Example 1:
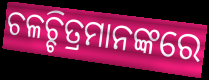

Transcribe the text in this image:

ଚଳଚ୍ଚିତ୍ରମାନଙ୍କରେ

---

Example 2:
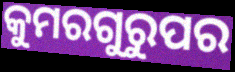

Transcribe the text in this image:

କୁମରଗୁରୁପର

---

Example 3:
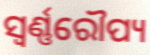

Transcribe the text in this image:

ସ୍ୱର୍ଣ୍ଣରୌପ୍ୟ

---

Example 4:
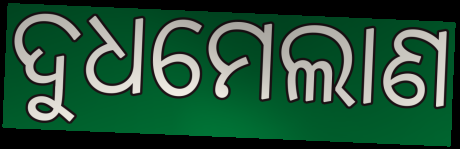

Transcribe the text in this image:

ଦୁଧମେଲାଣ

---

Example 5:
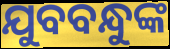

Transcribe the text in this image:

ଯୁବବନ୍ଧୁଙ୍କ